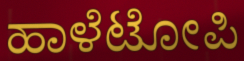
ಹಾಳೆಟೋಪಿ